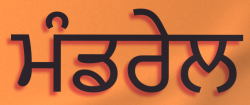
ਮੰਡਰੇਲ